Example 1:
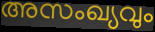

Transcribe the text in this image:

അസംഖ്യവും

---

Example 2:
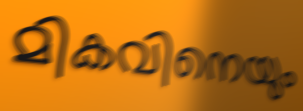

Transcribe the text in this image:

മികവിനെയും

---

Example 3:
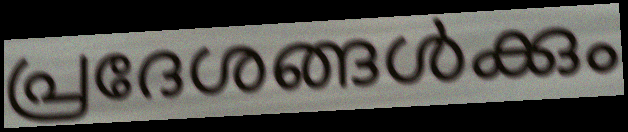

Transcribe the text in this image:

പ്രദേശങ്ങൾക്കും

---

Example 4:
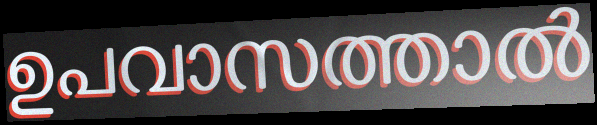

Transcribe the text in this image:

ഉപവാസത്താൽ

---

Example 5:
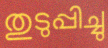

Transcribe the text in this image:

തുടുപ്പിച്ചു